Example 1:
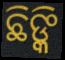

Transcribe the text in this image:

ଛିଙ୍କି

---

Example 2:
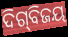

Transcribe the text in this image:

ଦିଗ୍‍ବିଜୟ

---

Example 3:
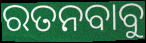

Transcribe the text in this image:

ରତନବାବୁ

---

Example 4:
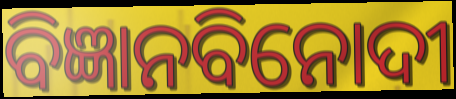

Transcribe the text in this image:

ବିଜ୍ଞାନବିନୋଦୀ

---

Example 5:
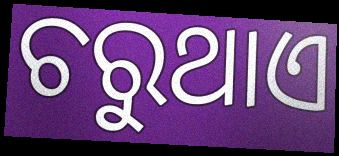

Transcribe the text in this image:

ଚରୁଥାଏ